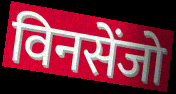
विनसेंजो